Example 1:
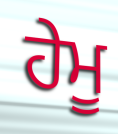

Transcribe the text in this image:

ਹੇਮੂ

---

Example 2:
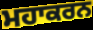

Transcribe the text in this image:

ਮਹਾਕਰਨ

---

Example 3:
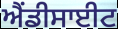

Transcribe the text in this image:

ਐਂਡੀਸਾਈਟ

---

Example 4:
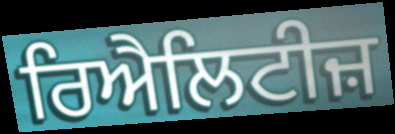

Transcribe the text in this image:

ਰਿਐਲਿਟੀਜ਼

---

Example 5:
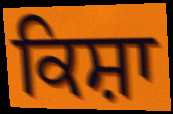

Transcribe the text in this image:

ਕਿਸ਼ਾ